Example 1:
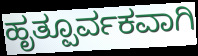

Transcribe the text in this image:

ಹೃತ್ಪೂರ್ವಕವಾಗಿ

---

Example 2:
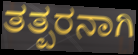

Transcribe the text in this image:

ತತ್ಪರನಾಗಿ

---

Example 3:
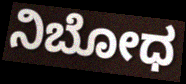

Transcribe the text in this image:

ನಿಬೋಧ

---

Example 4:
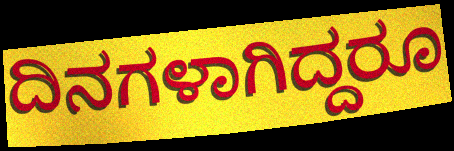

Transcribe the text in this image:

ದಿನಗಳಾಗಿದ್ದರೂ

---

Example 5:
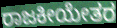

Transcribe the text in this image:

ರಾಜಕೀಯೇತರ